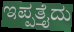
ಇಪ್ಪತ್ತೈದು